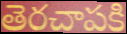
తెరచాపకి